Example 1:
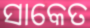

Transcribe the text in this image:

ସାକେତ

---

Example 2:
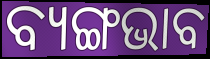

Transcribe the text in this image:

ବ୍ୟଙ୍ଗଭାବ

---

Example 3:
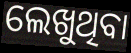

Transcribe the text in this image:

ଲେଖୁଥିବା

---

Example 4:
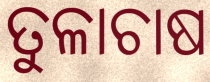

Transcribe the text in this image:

ତୁଳାଚାଷ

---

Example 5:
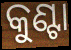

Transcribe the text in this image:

କୁଣ୍ଟା